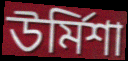
উর্মিশা